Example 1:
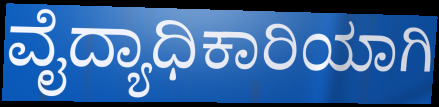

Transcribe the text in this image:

ವೈದ್ಯಾಧಿಕಾರಿಯಾಗಿ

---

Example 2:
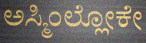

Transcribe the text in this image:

ಅಸ್ಮಿಂಲ್ಲೋಕೇ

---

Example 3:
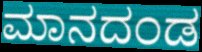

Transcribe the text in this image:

ಮಾನದಂಡ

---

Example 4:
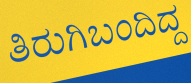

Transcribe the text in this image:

ತಿರುಗಿಬಂದಿದ್ದ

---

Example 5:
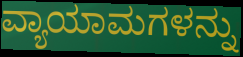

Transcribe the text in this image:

ವ್ಯಾಯಾಮಗಳನ್ನು